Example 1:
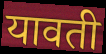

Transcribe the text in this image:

यावती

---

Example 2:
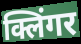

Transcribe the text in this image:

क्लिंगर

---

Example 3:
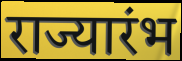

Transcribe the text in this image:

राज्यारंभ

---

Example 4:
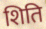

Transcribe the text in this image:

शिति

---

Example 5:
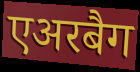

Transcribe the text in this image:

एअरबैग